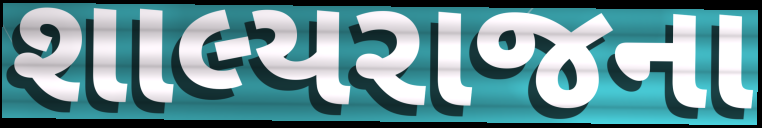
શાલ્યરાજના